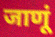
जाणूं